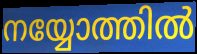
നയ്യോത്തിൽ